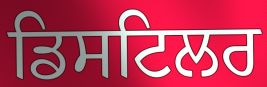
ਡਿਸਟਿਲਰ